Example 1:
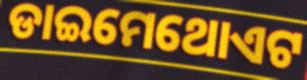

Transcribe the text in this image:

ଡାଇମେଥୋଏଟ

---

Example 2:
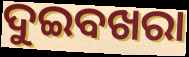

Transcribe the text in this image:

ଦୁଇବଖରା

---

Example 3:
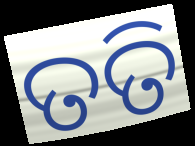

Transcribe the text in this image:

ତତି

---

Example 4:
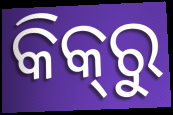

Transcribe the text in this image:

କିକ୍‍ରୁ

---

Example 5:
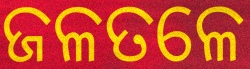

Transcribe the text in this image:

ଜଳତଳେ